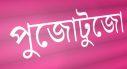
পুজোটুজো